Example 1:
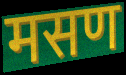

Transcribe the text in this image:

मसण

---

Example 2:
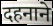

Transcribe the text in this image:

दहनाने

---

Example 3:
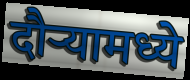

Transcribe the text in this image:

दौऱ्यामध्ये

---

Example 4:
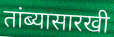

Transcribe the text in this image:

तांब्यासारखी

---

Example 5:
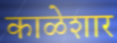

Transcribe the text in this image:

काळेशार